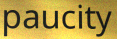
paucity